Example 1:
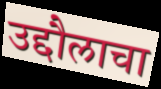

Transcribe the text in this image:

उद्दौलाचा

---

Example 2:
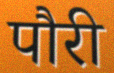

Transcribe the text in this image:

पौरी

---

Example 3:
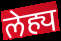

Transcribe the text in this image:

लेह्य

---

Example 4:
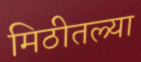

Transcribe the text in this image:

मिठीतल्या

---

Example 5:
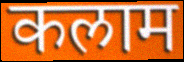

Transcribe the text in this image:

कलाम